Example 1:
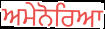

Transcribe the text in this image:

ਅਮੇਨੋਰਿਆ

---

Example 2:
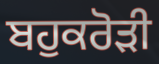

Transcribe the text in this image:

ਬਹੁਕਰੋਡ਼ੀ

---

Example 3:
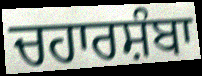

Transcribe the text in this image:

ਚਹਾਰਸ਼ੰਬਾ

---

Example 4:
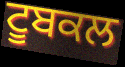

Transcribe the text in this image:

ਟੂਬਕਲ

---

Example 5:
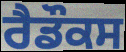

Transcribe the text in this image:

ਰੈਡੌਕਸ